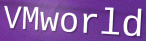
VMworld